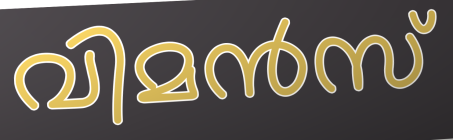
വിമൻസ്